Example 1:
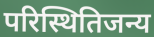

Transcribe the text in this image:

परिस्थितिजन्य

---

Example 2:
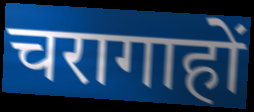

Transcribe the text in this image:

चरागाहों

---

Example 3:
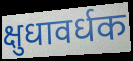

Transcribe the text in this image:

क्षुधावर्धक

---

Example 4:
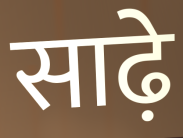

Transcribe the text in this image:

साढ़े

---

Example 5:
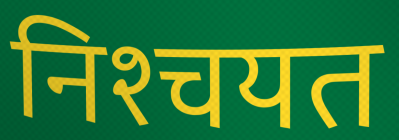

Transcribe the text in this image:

निश्चयत